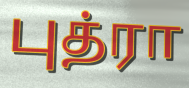
புத்ரா